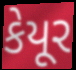
કેયૂર